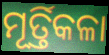
ମୂର୍ତ୍ତିକଳା